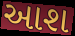
આશ